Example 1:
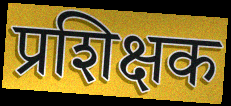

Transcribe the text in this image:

प्रशिक्षक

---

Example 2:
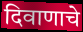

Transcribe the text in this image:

दिवाणाचे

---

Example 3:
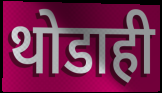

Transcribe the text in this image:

थोडाही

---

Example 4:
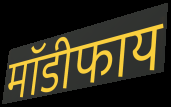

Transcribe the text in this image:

मॉडीफाय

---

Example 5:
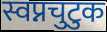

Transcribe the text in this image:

स्वप्नचुटुक